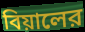
বিয়ালের